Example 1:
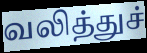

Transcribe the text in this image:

வலித்துச்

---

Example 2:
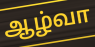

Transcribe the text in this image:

ஆழ்வா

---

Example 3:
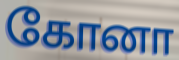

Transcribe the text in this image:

கோனா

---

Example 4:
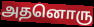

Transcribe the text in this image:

அதனொரு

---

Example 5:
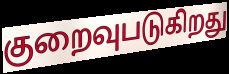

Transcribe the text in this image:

குறைவுபடுகிறது